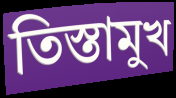
তিস্তামুখ